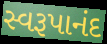
સ્વરૂપાનંદ